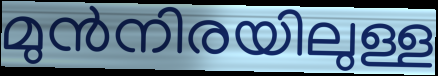
മുൻനിരയിലുള്ള